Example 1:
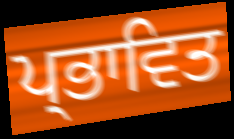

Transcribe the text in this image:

ਪ੍ਭਾਵਿਤ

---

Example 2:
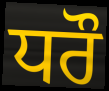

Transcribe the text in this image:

ਧਰੌ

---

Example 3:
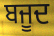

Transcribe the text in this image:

ਬਜੂਦ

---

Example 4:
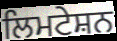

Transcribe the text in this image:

ਲਿਮਟੇਸ਼ਨ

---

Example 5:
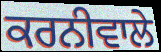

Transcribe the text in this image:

ਕਰਨੀਵਾਲੇ